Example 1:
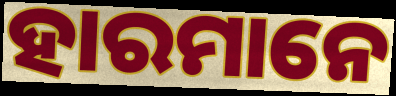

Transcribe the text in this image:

ହାରମାନେ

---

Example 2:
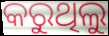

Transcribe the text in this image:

କରୁଥିଲୁ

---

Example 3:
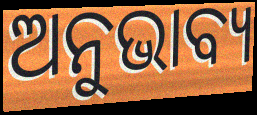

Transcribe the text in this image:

ଅନୁଭାବ୍ୟ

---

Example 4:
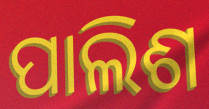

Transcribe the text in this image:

ପାଲିଶ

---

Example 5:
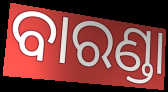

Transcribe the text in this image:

ବାରଣ୍ଡା